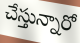
చేస్తున్నారో